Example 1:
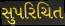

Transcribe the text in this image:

સુપરિચિત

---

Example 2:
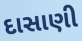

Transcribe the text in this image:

દાસાણી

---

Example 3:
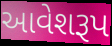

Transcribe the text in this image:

આવેશરૂપ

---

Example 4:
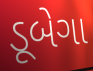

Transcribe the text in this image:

ડૂબેગા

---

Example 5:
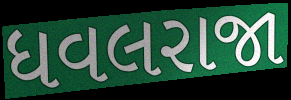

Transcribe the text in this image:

ધવલરાજા